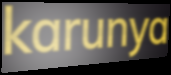
karunya